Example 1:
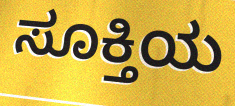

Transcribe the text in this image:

ಸೂಕ್ತಿಯ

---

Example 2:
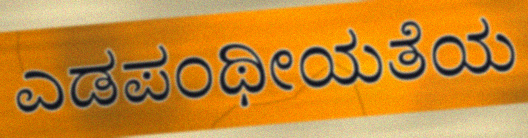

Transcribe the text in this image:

ಎಡಪಂಥೀಯತೆಯ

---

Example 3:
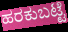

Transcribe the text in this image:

ಹರಕುಬಟ್ಟೆ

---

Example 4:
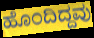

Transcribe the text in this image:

ಹೊಂದಿದ್ದವು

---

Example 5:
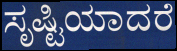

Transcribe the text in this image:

ಸೃಷ್ಟಿಯಾದರೆ